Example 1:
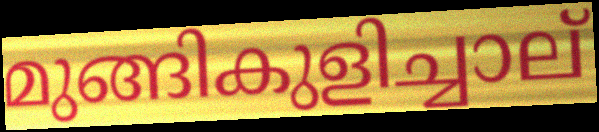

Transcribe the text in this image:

മുങ്ങികുളിച്ചാല്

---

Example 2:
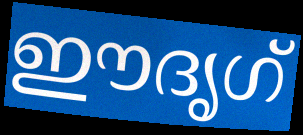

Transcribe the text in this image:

ഈദൃഗ്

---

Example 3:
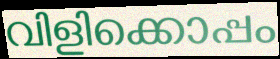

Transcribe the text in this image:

വിളിക്കൊപ്പം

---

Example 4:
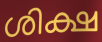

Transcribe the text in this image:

ശിക്ഷ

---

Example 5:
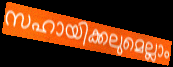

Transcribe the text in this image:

സഹായിക്കലുമെല്ലാം